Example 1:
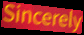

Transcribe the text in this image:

Sincerely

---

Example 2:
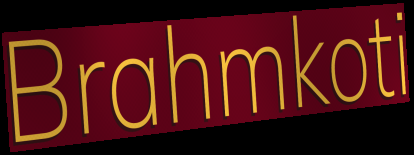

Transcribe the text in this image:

Brahmkoti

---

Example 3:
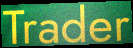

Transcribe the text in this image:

Trader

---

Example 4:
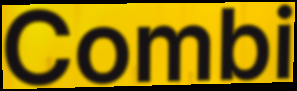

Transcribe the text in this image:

Combi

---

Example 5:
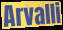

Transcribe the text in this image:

Arvalli